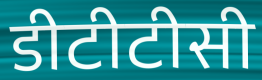
डीटीटीसी